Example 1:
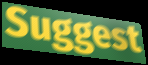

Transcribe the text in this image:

Suggest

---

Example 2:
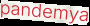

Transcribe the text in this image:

pandemya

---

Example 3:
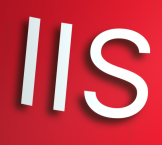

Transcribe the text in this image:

IIS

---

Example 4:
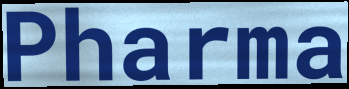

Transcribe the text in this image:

Pharma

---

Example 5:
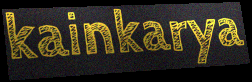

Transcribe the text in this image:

kainkarya